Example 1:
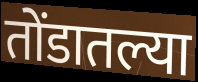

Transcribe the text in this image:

तोंडातल्या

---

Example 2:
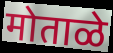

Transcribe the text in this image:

मोताळे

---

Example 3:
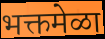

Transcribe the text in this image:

भक्तमेळा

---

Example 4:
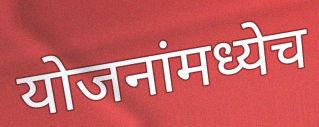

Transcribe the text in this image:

योजनांमध्येच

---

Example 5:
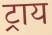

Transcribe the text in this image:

ट्राय